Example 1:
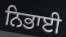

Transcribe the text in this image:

ਨਿਭਾਈ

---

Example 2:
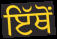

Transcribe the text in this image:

ਇੱਥੋਂ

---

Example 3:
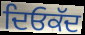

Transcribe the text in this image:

ਦਿਓਕੱਦ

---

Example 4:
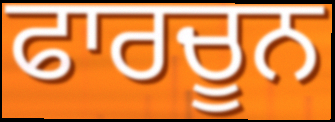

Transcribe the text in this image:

ਫਾਰਚੂਨ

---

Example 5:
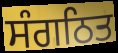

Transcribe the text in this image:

ਸੰਗਠਿਤ